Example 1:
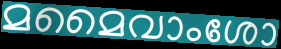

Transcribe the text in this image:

മമൈവാംശോ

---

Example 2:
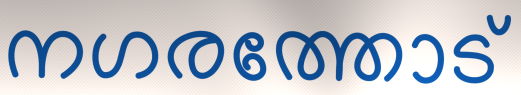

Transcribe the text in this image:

നഗരത്തോട്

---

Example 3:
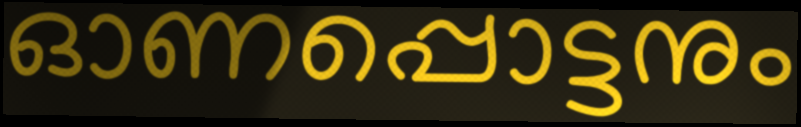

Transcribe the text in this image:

ഓണപ്പൊട്ടനും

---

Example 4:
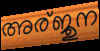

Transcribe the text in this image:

അര്ജുന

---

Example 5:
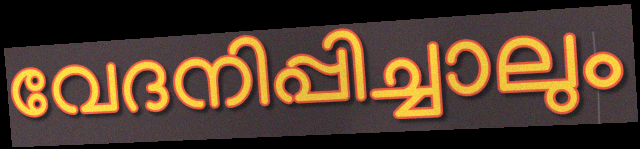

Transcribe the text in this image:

വേദനിപ്പിച്ചാലും